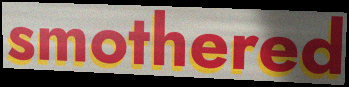
smothered